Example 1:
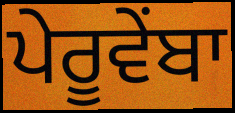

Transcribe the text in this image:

ਪੇਰੂਵੇਂਬਾ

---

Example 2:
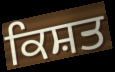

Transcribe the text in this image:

ਕਿਸ਼ਤ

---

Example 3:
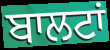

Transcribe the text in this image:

ਬਾਲਟਾਂ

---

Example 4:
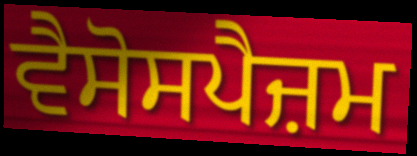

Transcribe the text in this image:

ਵੈਸੋਸਪੈਜ਼ਮ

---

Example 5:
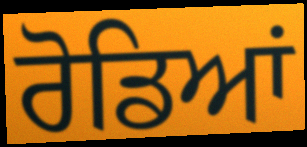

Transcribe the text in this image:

ਰੋਡਿਆਂ